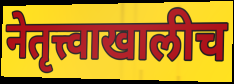
नेतृत्त्वाखालीच